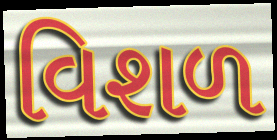
વિશળ